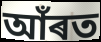
আঁৰত